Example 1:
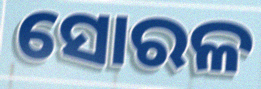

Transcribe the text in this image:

ସୋରଳ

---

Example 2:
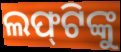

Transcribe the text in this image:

ଲଫ୍‌ଟିଙ୍କୁ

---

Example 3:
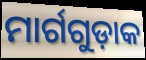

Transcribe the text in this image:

ମାର୍ଗଗୁଡ଼ାକ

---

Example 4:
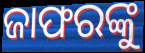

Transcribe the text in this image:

ଜାଫରଙ୍କୁ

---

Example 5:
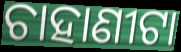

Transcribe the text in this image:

ଚାହାଣୀଟା